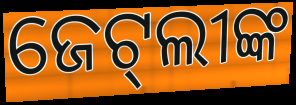
ଜେଟ୍‌ଲୀଙ୍କ